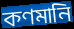
কণমানি